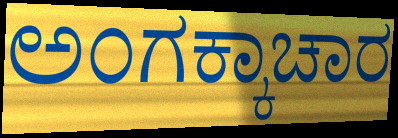
ಅಂಗಕ್ಕಾಚಾರ